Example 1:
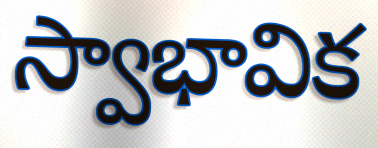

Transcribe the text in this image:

స్వాభావిక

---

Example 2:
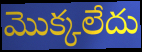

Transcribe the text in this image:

మొక్కలేదు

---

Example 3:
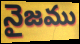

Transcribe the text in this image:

నైజము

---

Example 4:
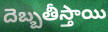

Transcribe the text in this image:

దెబ్బతీస్తాయి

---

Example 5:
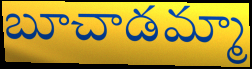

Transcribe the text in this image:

బూచాడమ్మా